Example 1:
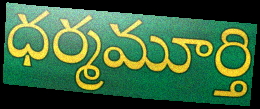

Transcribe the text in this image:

ధర్మమూర్తి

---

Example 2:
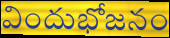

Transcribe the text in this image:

విందుభోజనం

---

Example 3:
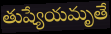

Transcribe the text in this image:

తుష్యేయమృతే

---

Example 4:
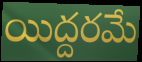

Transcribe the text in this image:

యిద్దరమే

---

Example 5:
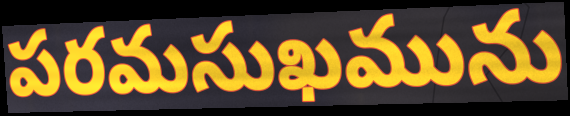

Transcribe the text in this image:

పరమసుఖమును